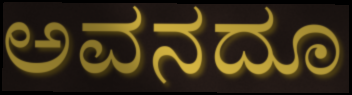
ಅವನದೂ